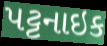
પટ્ટનાઇક